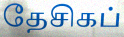
தேசிகப்